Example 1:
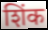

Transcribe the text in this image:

शिंक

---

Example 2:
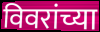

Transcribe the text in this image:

विवरांच्या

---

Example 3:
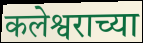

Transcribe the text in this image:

कलेश्वराच्या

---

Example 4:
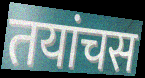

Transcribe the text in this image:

तयांचस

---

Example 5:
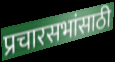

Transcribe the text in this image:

प्रचारसभांसाठी